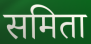
समिता